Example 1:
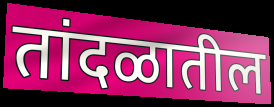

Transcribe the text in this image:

तांदळातील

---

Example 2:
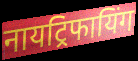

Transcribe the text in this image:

नायट्रिफायिंग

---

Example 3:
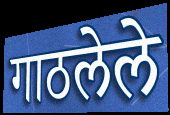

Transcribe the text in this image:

गाठलेले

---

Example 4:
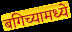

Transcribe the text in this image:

बगिच्यामध्ये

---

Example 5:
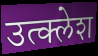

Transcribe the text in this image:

उत्क्लेश